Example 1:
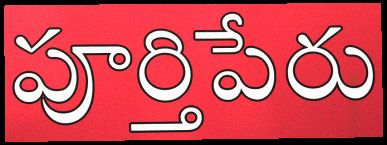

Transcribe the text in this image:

పూర్తిపేరు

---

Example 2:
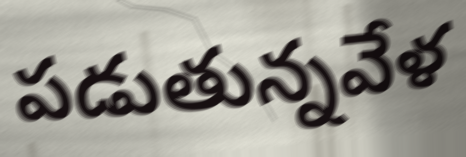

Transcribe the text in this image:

పడుతున్నవేళ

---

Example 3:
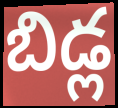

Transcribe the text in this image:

బిడ్ల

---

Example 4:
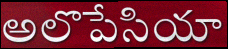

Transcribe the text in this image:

అలొపేసియా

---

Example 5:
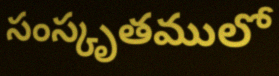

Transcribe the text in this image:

సంస్కృతములో